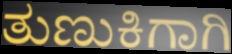
ತುಣುಕಿಗಾಗಿ